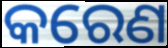
କରେଣ